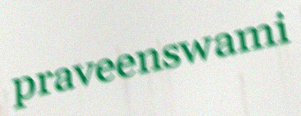
praveenswami